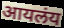
आयलंय